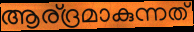
ആര്ദ്രമാകുന്നത്